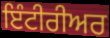
ਇੰਟੀਰੀਅਰ